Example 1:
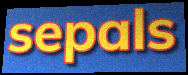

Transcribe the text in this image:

sepals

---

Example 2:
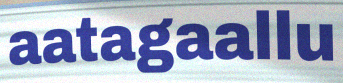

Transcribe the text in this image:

aatagaallu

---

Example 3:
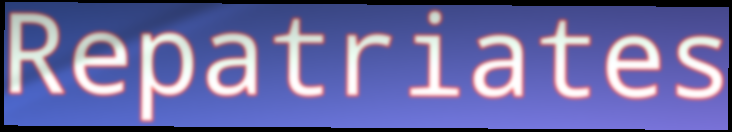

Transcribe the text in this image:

Repatriates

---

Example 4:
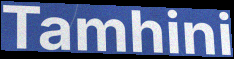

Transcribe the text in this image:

Tamhini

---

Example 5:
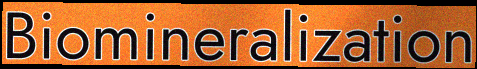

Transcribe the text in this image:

Biomineralization